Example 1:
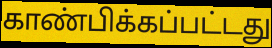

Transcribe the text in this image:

காண்பிக்கப்பட்டது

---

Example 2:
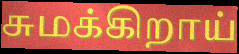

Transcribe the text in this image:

சுமக்கிறாய்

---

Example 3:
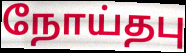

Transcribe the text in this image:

நோய்தபு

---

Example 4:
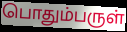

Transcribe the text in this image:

பொதும்பருள்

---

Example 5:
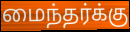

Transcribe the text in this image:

மைந்தர்க்கு